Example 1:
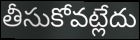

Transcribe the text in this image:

తీసుకోవట్లేదు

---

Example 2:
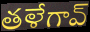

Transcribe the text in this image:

తళేగావ్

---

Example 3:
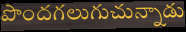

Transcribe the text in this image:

పొందగలుగుచున్నాడు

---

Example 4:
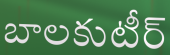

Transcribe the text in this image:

బాలకుటీర్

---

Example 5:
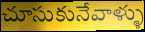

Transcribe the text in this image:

చూసుకునేవాళ్ళు